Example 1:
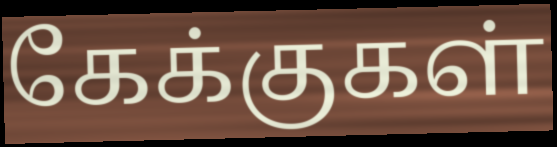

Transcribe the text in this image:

கேக்குகள்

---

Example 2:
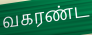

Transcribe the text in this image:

வகரண்ட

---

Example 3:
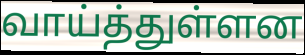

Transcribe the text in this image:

வாய்த்துள்ளன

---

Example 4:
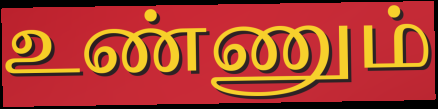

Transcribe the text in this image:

உண்ணும்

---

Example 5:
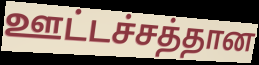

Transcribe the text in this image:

ஊட்டச்சத்தான